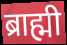
ब्राह्मी